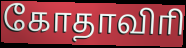
கோதாவிரி